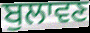
ਬੁਲਾਵਣ